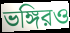
ভঙ্গিরও